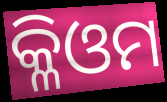
କ୍ଳିଓମ